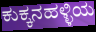
ಕುಕ್ಕನಹಳ್ಳಿಯ